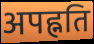
अपह्नति